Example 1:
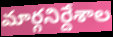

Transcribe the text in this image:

మార్గనిర్దేశాల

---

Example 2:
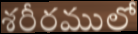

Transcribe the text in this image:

శరీరములో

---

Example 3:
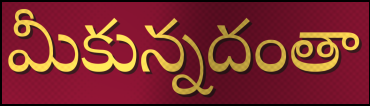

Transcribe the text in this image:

మీకున్నదంతా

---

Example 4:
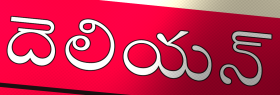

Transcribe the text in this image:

దెలియన్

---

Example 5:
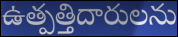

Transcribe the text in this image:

ఉత్పత్తిదారులను